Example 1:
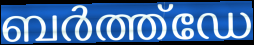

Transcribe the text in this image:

ബർത്ത്ഡേ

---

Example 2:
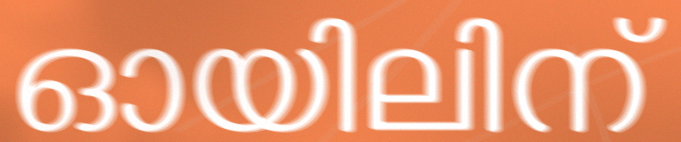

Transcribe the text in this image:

ഓയിലിന്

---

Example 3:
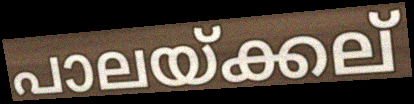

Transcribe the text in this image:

പാലയ്ക്കല്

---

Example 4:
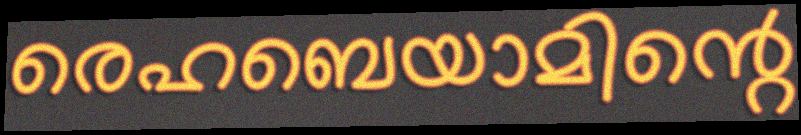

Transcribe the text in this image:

രെഹബെയാമിന്റെ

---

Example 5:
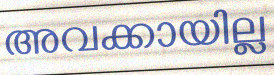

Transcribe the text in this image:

അവക്കായില്ല